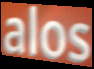
alos